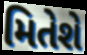
મિતેશે